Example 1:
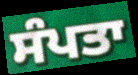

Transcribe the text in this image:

ਸੰਪਤਾ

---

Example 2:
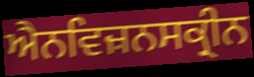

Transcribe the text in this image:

ਐਨਵਿਜ਼ਨਸਕ੍ਰੀਨ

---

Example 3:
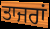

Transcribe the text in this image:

ਤਾਜਰਾਂ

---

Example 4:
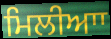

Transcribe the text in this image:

ਮਿਲੀਆਾ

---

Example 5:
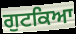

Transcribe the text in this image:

ਗੁਟਕਿਆ